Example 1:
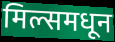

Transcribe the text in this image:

मिल्समधून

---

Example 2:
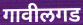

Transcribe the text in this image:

गावीलगड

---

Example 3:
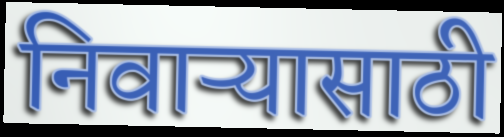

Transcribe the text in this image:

निवाऱ्यासाठी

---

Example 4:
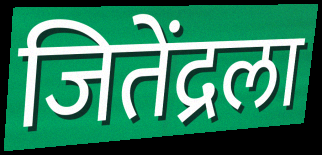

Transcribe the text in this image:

जितेंद्रला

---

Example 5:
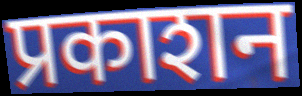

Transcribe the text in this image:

प्रकाशन